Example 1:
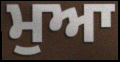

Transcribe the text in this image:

ਮੁਆ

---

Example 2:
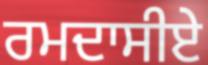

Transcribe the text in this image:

ਰਮਦਾਸੀਏ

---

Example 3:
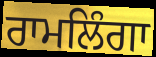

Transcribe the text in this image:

ਰਾਮਲਿੰਗਾ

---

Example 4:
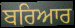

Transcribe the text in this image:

ਬਰਿਆਰ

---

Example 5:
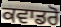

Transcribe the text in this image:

ਕਵਾਡਰੋ